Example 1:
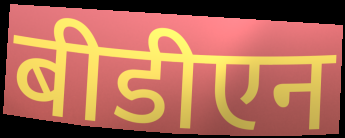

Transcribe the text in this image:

बीडीएन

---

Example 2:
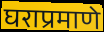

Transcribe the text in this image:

घराप्रमाणे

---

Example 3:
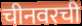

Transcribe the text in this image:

चीनवरची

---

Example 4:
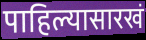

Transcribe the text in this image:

पाहिल्यासारखं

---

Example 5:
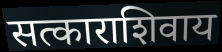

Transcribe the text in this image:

सत्काराशिवाय